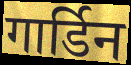
गार्डिन